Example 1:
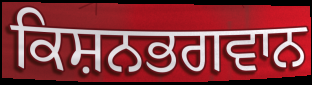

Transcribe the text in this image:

ਕਿਸ਼ਨਭਗਵਾਨ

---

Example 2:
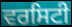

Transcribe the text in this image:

ਵਰਸਿਟੀ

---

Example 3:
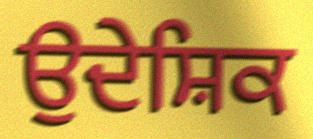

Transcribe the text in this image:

ਉਦੇਸ਼ਿਕ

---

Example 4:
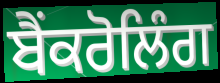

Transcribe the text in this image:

ਬੈਂਕਰੋਲਿੰਗ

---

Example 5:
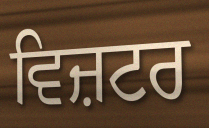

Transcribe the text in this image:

ਵਿਜ਼ਟਰ